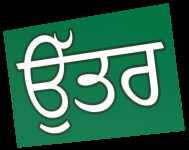
ਉੱਤਰ